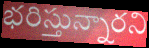
భరిస్తున్నారని